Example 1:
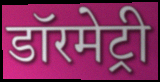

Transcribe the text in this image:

डॉरमेट्री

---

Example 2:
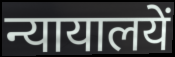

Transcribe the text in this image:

न्यायालयें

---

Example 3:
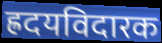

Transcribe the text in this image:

ह्रदयविदारक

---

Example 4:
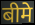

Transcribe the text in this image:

बीमे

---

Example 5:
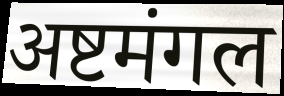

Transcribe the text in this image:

अष्टमंगल